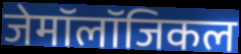
जेमॉलॉजिकल